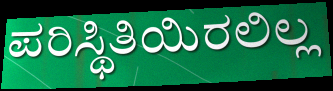
ಪರಿಸ್ಥಿತಿಯಿರಲಿಲ್ಲ